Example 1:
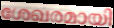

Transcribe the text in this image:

ശേഖരമായി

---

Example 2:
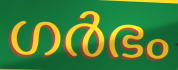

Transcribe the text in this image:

ഗർഭം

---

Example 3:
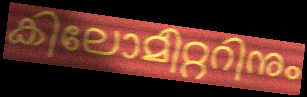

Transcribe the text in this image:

കിലോമീറ്ററിനും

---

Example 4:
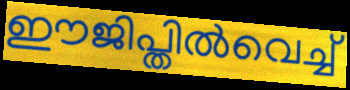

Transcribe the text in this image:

ഈജിപ്തിൽവെച്ച്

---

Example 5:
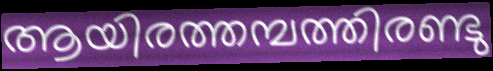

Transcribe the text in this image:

ആയിരത്തമ്പത്തിരണ്ടു